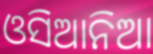
ଓସିଆନିଆ